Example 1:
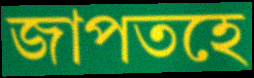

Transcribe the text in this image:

জাপতহে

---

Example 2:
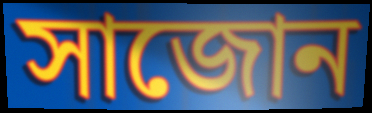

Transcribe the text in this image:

সাজোন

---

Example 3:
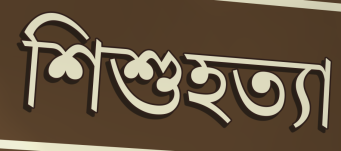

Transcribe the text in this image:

শিশুহত্যা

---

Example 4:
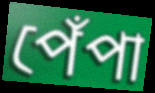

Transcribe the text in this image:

পেঁপা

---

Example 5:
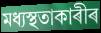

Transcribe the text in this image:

মধ্যস্থতাকাৰীৰ